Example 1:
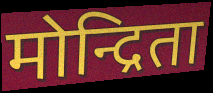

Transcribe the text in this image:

मोन्द्रिता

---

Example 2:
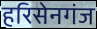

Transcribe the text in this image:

हरिसेनगंज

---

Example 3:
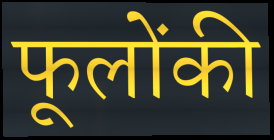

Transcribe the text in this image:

फूलोंकी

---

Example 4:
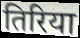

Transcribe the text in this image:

तिरिया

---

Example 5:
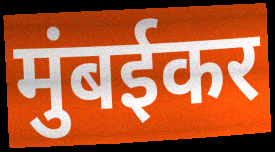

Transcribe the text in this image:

मुंबईकर